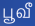
பூவீ